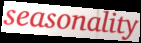
seasonality